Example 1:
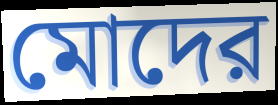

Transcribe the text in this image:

মোদের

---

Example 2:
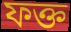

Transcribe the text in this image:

ফক্ত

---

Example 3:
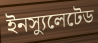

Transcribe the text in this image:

ইনস্যুলেটেড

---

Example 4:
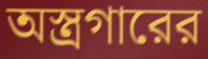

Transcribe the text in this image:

অস্ত্রগারের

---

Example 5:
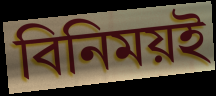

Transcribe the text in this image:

বিনিময়ই